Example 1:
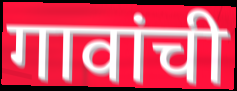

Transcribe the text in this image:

गावांची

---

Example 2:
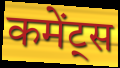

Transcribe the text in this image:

कमेंट्‌स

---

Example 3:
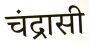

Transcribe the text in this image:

चंद्रासी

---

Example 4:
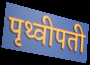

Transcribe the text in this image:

पृथ्वीपती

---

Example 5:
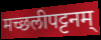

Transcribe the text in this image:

मच्छलीपट्टनम्